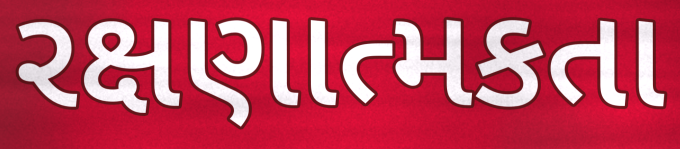
રક્ષણાત્મકતા